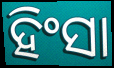
ହିଂସା